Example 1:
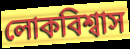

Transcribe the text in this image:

লোকবিশ্বাস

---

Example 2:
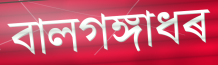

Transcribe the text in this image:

বালগঙ্গাধৰ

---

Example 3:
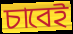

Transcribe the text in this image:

চাবেই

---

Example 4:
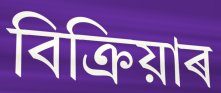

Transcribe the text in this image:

বিক্ৰিয়াৰ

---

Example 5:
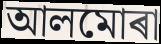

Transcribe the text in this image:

আলমোৰা